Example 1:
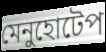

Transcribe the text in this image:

মেনুহোটেপ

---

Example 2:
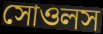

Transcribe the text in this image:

সোওলস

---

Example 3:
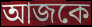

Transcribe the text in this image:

আজকে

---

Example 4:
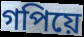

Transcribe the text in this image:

গপিয়ে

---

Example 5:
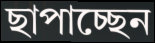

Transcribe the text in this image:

ছাপাচ্ছেন